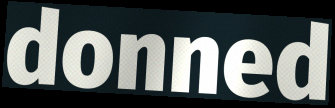
donned